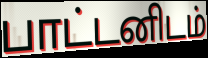
பாட்டனிடம்